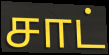
சாட்